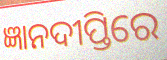
ଜ୍ଞାନଦୀପ୍ତିରେ